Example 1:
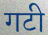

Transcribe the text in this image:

गटी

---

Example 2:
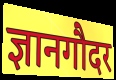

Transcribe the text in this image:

ज्ञानगौदर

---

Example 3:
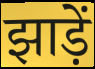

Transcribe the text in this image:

झाड़ें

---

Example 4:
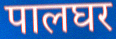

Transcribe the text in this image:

पालघर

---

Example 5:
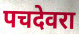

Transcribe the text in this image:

पचदेवरा